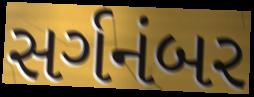
સર્ગનંબર